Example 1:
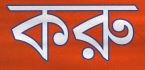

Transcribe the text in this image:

করু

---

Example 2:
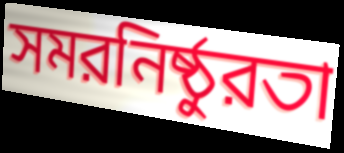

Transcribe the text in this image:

সমরনিষ্ঠুরতা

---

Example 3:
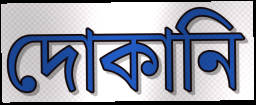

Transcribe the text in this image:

দোকানি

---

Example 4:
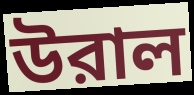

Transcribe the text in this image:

উরাল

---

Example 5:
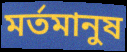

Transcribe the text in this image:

মর্তমানুষ